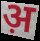
अ़